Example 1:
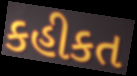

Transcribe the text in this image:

કહીકત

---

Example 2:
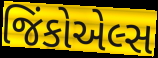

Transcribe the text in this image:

જિંકોએલ્સ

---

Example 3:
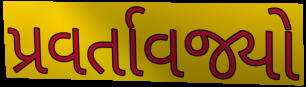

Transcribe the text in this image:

પ્રવર્તાવજ્યો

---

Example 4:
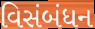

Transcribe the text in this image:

વિસંબંધન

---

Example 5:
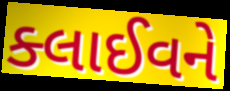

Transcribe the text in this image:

ક્લાઈવને